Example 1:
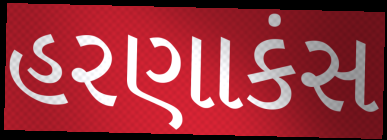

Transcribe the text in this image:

હરણાકંસ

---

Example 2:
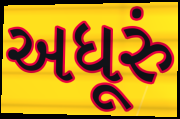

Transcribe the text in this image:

અધૂરું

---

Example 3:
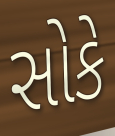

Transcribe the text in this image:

સોકે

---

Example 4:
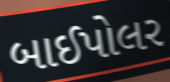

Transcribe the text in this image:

બાઈપોલર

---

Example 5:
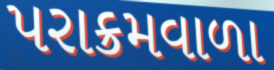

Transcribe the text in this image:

પરાક્રમવાળા